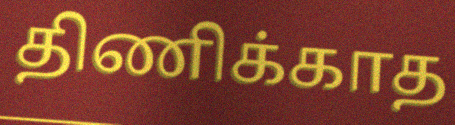
திணிக்காத